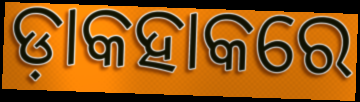
ଡ଼ାକହାକରେ